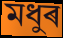
মধুৰ